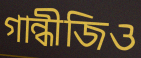
গান্ধীজিও